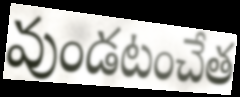
వుండటంచేత